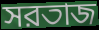
সরতাজ